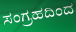
ಸಂಗ್ರಹದಿಂದ